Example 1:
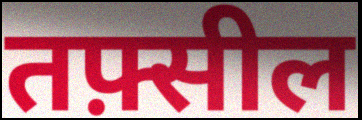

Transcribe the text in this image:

तफ़्सील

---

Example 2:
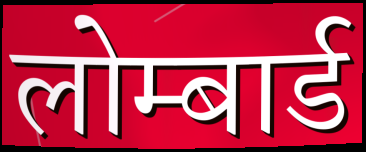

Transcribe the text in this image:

लोम्बार्ड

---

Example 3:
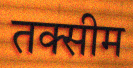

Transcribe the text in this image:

तक्सीम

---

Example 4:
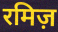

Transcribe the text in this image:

रमिज़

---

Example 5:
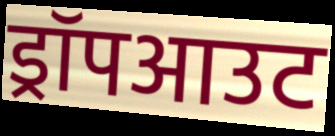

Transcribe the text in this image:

ड्रॉपआउट